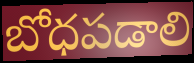
బోధపడాలి